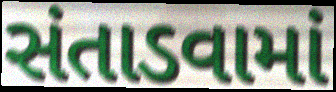
સંતાડવામાં